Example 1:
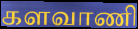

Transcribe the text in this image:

களவாணி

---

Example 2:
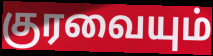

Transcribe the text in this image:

குரவையும்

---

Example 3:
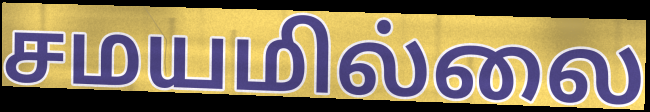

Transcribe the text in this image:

சமயமில்லை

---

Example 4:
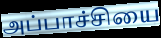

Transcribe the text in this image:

அப்பாச்சியை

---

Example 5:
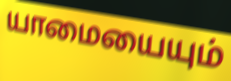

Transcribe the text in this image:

யாமையையும்